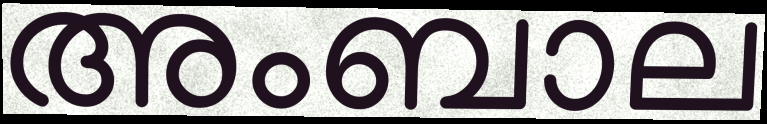
അംബാല